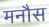
मनौस